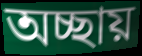
অচ্ছায়